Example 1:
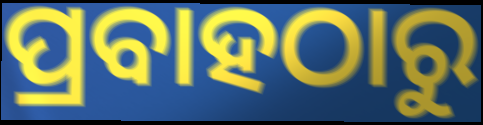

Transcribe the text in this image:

ପ୍ରବାହଠାରୁ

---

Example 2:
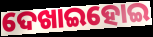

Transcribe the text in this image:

ଦେଖାଇହୋଇ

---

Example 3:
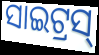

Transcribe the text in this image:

ସାଇଟ୍ରସ୍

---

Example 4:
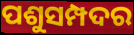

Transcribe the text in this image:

ପଶୁସମ୍ପଦର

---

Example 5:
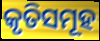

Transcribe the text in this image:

କୃତିସମୂହ